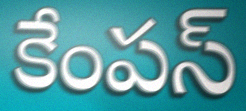
కేంపస్